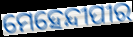
ମେହେନ୍ଦୀପୀର